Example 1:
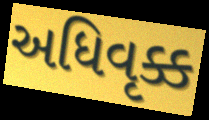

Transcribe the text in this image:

અધિવૃક્ક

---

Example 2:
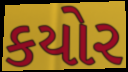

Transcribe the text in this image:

કયોર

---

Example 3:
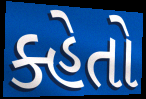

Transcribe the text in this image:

ક્હેતો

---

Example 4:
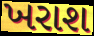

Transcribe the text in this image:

ખરાશ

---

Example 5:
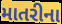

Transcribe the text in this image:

માતરીના